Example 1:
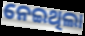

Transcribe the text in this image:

ନେଇଥିଲା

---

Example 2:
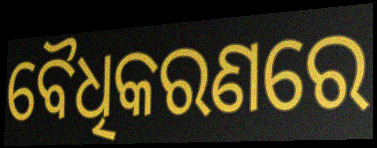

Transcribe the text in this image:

ବୈଧିକରଣରେ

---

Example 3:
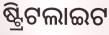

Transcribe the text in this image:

ଷ୍ଟ୍ରିଟଲାଇଟ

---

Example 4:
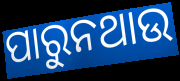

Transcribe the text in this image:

ପାରୁନଥାଉ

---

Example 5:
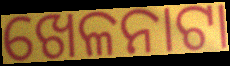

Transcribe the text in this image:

ଖେଳନାଟା